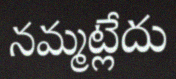
నమ్మట్లేదు